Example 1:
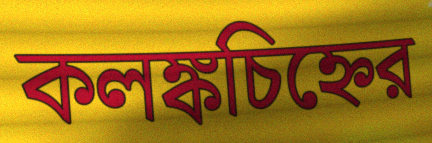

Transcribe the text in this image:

কলঙ্কচিহ্নের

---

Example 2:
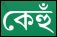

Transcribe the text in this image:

কেহুঁ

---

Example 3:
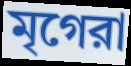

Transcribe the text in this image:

মৃগেরা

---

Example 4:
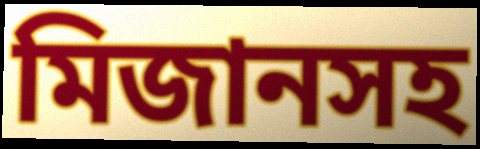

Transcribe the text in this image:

মিজানসহ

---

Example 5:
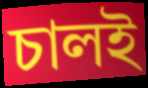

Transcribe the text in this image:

চালই